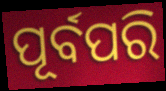
ପୂର୍ବପରି